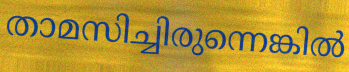
താമസിച്ചിരുന്നെങ്കിൽ